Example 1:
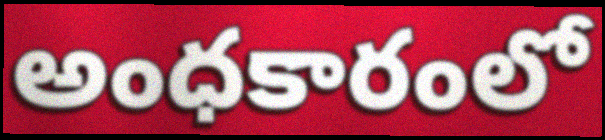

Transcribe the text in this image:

అంధకారంలో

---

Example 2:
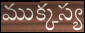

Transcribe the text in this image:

ముక్కస్య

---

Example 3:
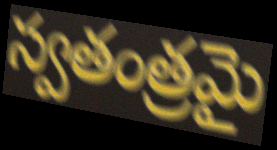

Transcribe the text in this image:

స్వతంత్రమై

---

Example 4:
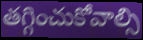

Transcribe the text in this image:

తగ్గించుకోవాల్సి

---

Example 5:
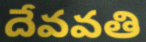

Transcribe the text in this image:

దేవవతి